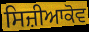
ਸਿਜ਼ੀਆਕੋਵ